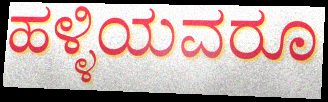
ಹಳ್ಳಿಯವರೂ